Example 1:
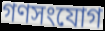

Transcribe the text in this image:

গণসংযোগ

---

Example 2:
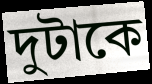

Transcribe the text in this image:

দুটাকে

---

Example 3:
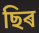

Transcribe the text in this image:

ছিৰ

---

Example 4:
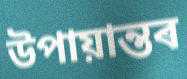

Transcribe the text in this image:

উপায়ান্তৰ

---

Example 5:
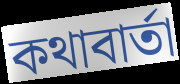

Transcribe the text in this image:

কথাবাৰ্তা